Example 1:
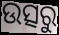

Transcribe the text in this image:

ଉତ୍ସରୁ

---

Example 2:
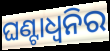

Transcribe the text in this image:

ଘଣ୍ଟାଧ୍ୱନିର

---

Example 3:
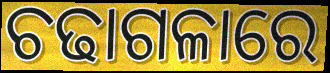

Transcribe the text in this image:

ଚଢାଗଳାରେ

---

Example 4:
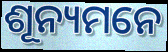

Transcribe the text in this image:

ଶୂନ୍ୟମନେ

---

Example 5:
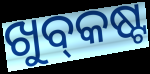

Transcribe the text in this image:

ଖୁବ୍‌କଷ୍ଟ